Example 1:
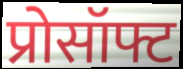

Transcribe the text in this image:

प्रोसॉफ्ट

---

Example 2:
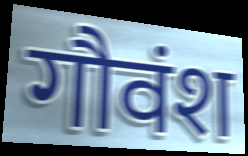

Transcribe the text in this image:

गौवंश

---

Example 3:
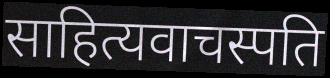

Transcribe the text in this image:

साहित्यवाचस्पति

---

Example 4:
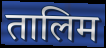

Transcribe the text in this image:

तालिम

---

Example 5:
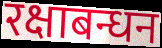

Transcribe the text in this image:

रक्षाबन्धन